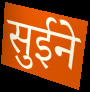
सुईने